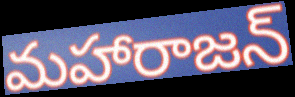
మహారాజన్